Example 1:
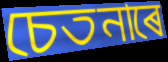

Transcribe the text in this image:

চেতনাৰে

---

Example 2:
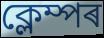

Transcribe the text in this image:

ক্লেম্পৰ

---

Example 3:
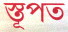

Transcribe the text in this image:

স্তূপত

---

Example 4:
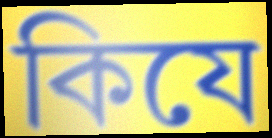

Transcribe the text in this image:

কিযে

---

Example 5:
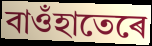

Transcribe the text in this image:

বাওঁহাতেৰে